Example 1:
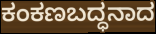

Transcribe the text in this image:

ಕಂಕಣಬದ್ಧನಾದ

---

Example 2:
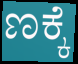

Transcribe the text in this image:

ಣಕ್ಕೆ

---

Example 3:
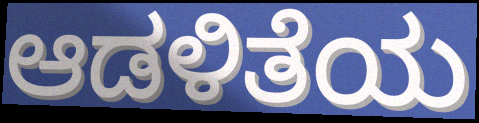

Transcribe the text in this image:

ಆಡಳಿತೆಯ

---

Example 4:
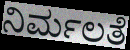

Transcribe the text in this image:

ನಿರ್ಮಲತೆ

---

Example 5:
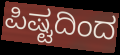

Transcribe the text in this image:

ಪಿಷ್ಟದಿಂದ